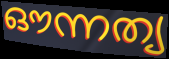
ഔന്നത്യ